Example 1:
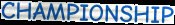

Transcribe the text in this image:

CHAMPIONSHIP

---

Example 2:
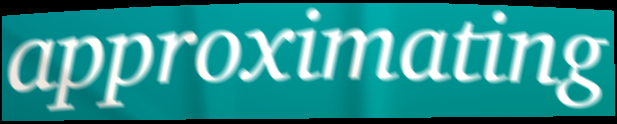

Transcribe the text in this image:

approximating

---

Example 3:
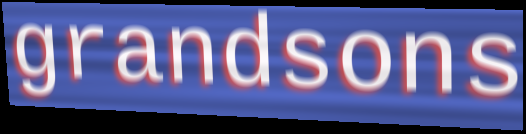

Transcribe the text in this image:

grandsons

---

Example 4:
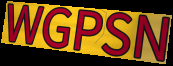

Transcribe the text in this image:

WGPSN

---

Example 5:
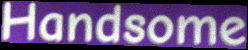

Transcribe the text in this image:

Handsome